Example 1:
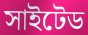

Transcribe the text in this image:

সাইটেড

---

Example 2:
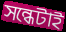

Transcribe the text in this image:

সন্ধেটাই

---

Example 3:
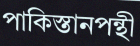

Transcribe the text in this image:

পাকিস্তানপন্থী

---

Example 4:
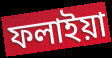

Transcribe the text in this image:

ফলাইয়া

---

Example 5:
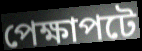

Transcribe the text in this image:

পেক্ষাপটে